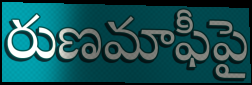
రుణమాఫీపై